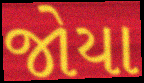
જોયા